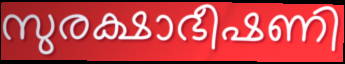
സുരക്ഷാഭീഷണി